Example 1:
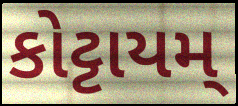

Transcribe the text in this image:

કોટ્ટાયમ્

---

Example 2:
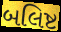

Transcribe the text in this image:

બલિષ્ટ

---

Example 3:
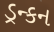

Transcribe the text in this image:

ડ્રન્કન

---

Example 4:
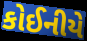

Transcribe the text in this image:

કોઈનીયે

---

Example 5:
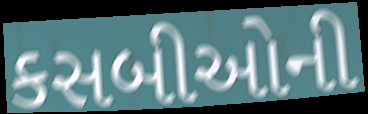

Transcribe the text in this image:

કસબીઓની